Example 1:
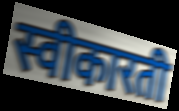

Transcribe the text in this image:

स्वीकारती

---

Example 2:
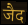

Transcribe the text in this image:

जैद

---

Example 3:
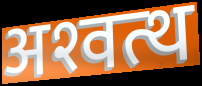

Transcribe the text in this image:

अश्वत्थ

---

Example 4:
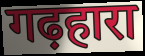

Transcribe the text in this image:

गढ़हारा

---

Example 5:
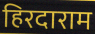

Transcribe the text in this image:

हिरदाराम